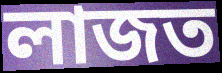
লাজত